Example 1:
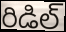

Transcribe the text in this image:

రిడిల్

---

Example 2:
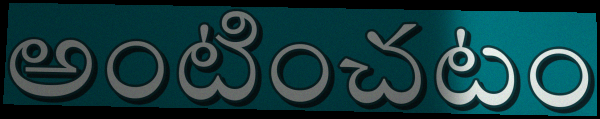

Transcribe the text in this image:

అంటించటం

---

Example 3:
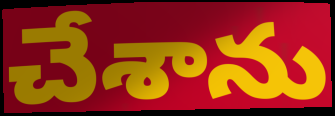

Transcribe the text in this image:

చేశాను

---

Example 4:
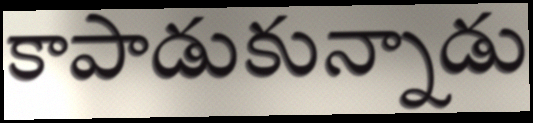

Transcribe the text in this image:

కాపాడుకున్నాడు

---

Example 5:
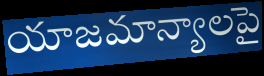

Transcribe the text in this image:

యాజమాన్యాలపై